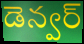
డెన్వర్